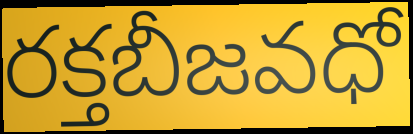
రక్తబీజవధో